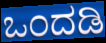
ಒಂದಡಿ